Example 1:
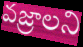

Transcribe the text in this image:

వజ్రాలని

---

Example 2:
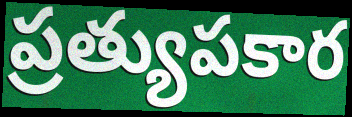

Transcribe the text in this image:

ప్రత్యుపకార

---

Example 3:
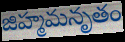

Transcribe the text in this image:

జిహ్మమనృతం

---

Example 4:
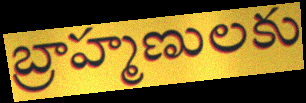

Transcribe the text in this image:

బ్రాహ్మణులకు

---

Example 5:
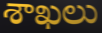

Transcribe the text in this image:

శాఖలు